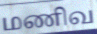
மணிவ